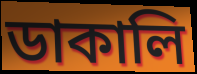
ডাকালি